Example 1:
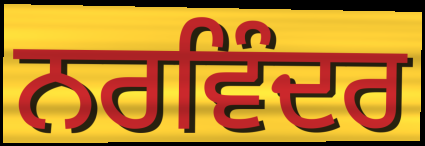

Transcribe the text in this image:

ਨਰਵਿੰਦਰ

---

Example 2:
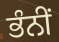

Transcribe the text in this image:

ਭੰਨੀਂ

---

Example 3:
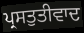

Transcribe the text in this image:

ਪ੍ਰਸਤੁਤੀਵਾਦ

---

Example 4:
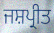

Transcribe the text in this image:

ਜਸ਼ਪ੍ਰੀਤ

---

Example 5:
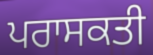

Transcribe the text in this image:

ਪਰਾਸਕਤੀ